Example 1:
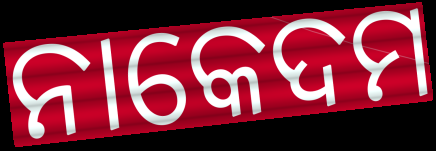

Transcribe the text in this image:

ନାକେଦମ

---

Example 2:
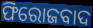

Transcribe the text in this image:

ଫିରୋଜବାଦ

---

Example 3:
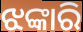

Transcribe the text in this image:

ଝଙ୍କାରି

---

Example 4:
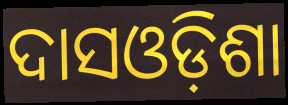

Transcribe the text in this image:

ଦାସଓଡ଼ିଶା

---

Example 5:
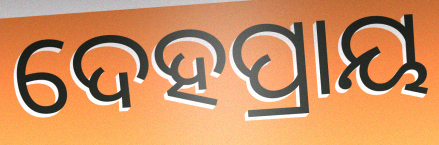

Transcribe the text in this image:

ଦେହପ୍ରାୟ